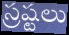
స్రష్టలు